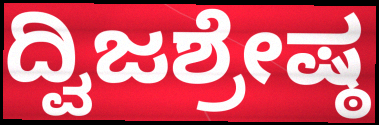
ದ್ವಿಜಶ್ರೇಷ್ಠ